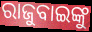
ରାଜୁବାଇଙ୍କୁ